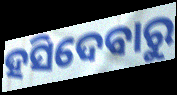
ହସିଦେବାରୁ